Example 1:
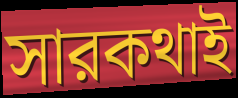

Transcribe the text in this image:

সারকথাই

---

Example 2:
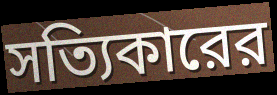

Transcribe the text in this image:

সত্যিকারের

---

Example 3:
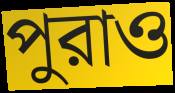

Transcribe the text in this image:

পুরাও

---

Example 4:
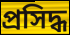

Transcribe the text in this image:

প্রসিদ্ধ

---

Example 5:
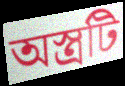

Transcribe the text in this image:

অস্ত্রটি